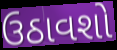
ઉઠાવશો